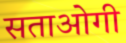
सताओगी